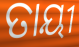
ତାୟୀ